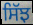
ਸਿੱਝ